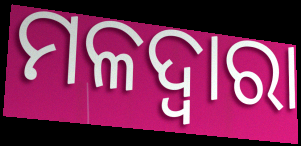
ମଳଦ୍ଵାରା